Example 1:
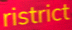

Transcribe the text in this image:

ristrict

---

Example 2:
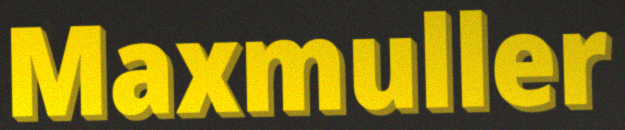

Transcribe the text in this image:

Maxmuller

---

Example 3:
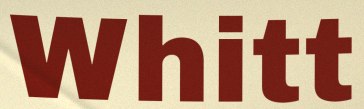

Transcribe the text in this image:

Whitt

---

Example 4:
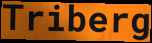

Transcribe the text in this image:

Triberg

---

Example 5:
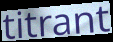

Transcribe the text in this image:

titrant